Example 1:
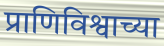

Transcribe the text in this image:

प्राणिविश्वाच्या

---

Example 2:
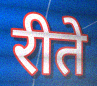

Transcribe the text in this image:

रीते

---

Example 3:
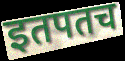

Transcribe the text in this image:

इतपतच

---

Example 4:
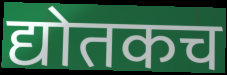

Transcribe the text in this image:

द्योतकच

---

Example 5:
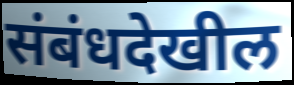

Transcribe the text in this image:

संबंधदेखील